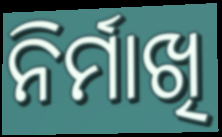
ନିର୍ମାଖି